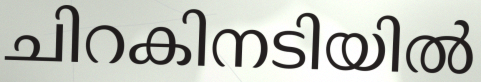
ചിറകിനടിയിൽ